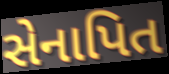
સેનાપિત